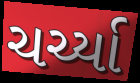
ચર્ચ્યા